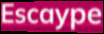
Escaype